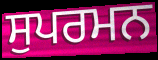
ਸੁਪਰਮਨ